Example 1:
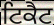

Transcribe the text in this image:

ਟਿਕੈਟ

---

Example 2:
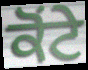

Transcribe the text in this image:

ਕੋਂਟੇ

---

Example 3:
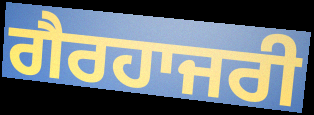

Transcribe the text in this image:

ਗੈਰਹਾਜਰੀ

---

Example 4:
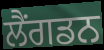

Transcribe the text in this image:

ਲੈਂਗਡਨ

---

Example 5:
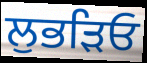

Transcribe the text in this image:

ਲੁਭੜਿਓ